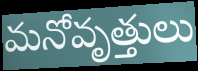
మనోవృత్తులు